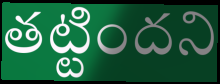
తట్టిందని